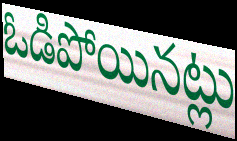
ఓడిపోయినట్లు